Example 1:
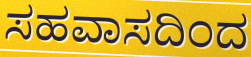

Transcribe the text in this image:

ಸಹವಾಸದಿಂದ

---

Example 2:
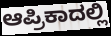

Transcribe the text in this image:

ಆಪ್ರಿಕಾದಲ್ಲಿ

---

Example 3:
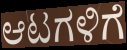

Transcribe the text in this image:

ಆಟಗಳಿಗೆ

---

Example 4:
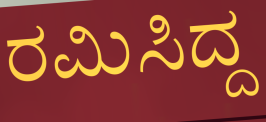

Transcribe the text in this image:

ರಮಿಸಿದ್ದ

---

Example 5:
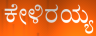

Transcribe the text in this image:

ಕೇಳಿರಯ್ಯ